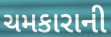
ચમકારાની